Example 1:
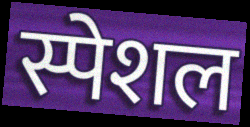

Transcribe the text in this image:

स्‍पेशल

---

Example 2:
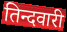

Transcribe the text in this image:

तिन्दवारी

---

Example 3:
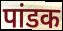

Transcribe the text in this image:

पांडक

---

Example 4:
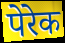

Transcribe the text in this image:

पेरेक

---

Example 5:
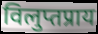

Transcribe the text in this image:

विलुप्तप्राय